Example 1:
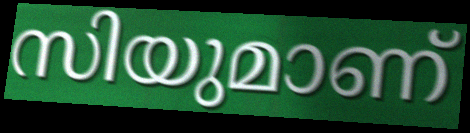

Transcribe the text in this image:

സിയുമാണ്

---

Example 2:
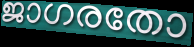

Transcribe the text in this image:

ജാഗരതോ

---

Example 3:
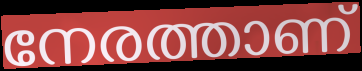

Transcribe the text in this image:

നേരത്താണ്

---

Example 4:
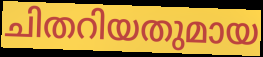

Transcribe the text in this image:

ചിതറിയതുമായ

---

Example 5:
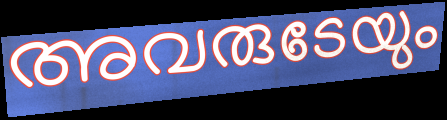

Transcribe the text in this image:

അവരുടേയും